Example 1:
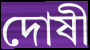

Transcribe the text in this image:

দোষী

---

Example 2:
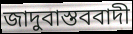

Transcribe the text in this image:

জাদুবাস্তববাদী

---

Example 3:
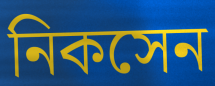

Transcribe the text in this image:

নিকসেন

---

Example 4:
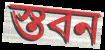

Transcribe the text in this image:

স্তবন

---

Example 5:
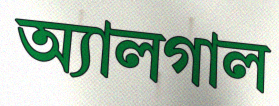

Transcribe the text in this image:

অ্যালগাল